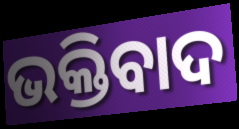
ଭକ୍ତିବାଦ